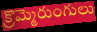
క్రొమ్మెరుంగులు